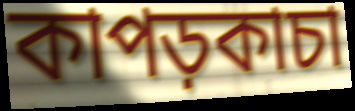
কাপড়কাচা